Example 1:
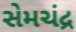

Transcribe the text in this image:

સેમચંદ્ર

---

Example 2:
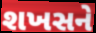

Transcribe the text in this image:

શખસને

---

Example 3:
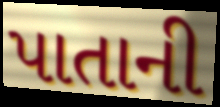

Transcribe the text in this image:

પાતાની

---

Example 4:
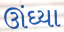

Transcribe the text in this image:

ઊંઘ્યા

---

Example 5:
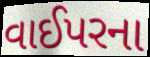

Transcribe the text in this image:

વાઈપરના